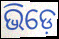
ଭିଡ଼େ